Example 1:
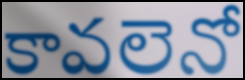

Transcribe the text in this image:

కావలెనో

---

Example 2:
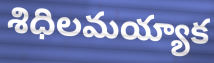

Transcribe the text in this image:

శిధిలమయ్యాక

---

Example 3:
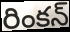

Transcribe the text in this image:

రింకన్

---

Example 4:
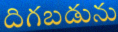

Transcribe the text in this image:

దిగబడును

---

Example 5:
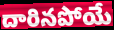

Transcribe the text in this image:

దారినపోయే